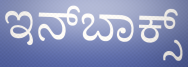
ಇನ್‍ಬಾಕ್ಸ್